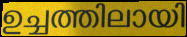
ഉച്ചത്തിലായി